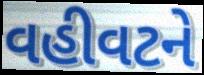
વહીવટને